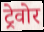
ट्रेवोर